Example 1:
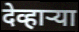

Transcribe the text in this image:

देव्हाऱ्या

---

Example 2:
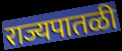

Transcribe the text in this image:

राज्यपातळी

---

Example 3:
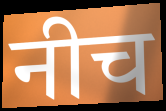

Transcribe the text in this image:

नीच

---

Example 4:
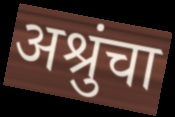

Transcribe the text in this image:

अश्रुंचा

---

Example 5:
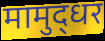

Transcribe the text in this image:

मामुद्धर